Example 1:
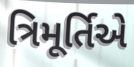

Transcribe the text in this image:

ત્રિમૂર્તિએ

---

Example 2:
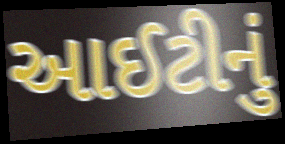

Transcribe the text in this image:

આઈટીનું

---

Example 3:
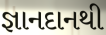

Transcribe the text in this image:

જ્ઞાનદાનથી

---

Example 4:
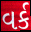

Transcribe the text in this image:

વર્ક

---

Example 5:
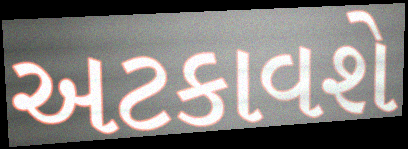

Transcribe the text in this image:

અટકાવશે